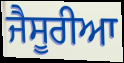
ਜੈਸੂਰੀਆ